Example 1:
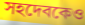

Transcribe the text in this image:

সহদেবকেও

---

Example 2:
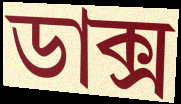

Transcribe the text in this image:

ডাক্স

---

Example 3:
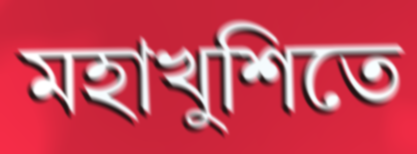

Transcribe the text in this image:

মহাখুশিতে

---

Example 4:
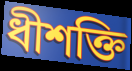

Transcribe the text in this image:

ধীশক্তি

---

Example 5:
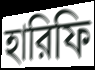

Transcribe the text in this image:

হারিফি